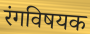
रंगविषयक